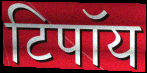
टिपॉय